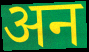
अन